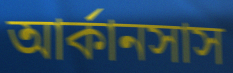
আর্কানসাস